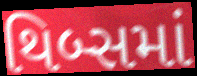
થિબ્સમાં